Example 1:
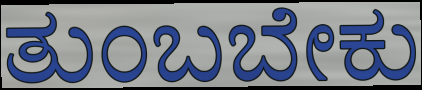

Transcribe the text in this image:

ತುಂಬಬೇಕು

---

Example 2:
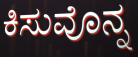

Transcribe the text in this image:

ಕಿಸುವೊನ್ನ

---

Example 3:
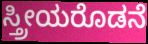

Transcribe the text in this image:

ಸ್ತ್ರೀಯರೊಡನೆ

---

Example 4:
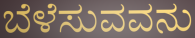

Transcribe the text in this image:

ಬೆಳೆಸುವವನು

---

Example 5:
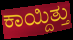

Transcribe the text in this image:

ಕಾಯ್ದಿತ್ತು